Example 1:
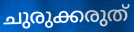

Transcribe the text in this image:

ചുരുക്കരുത്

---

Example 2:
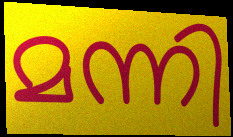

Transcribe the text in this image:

മന്നി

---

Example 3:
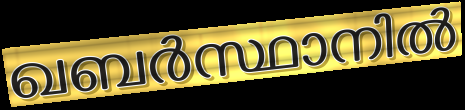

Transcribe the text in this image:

ഖബർസ്ഥാനിൽ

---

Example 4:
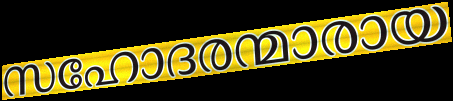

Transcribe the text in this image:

സഹോദരന്മാരായ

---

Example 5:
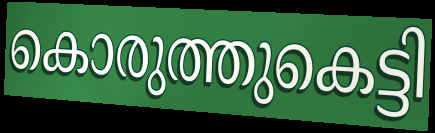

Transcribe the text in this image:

കൊരുത്തുകെട്ടി